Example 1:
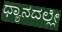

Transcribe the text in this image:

ಧ್ಯಾನದಲ್ಲೇ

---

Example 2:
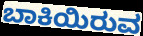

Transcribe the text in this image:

ಬಾಕಿಯಿರುವ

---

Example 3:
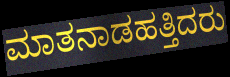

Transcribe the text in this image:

ಮಾತನಾಡಹತ್ತಿದರು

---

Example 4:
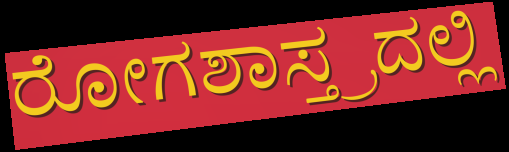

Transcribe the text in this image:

ರೋಗಶಾಸ್ತ್ರದಲ್ಲಿ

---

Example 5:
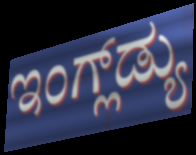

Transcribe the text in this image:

ಇಂಗ್ಲ್‌ಡ್ಯು